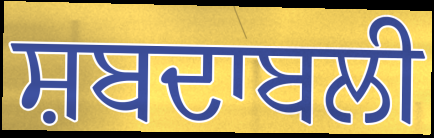
ਸ਼ਬਦਾਬਲੀ